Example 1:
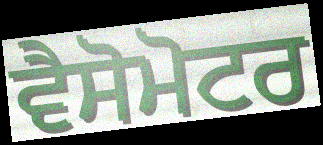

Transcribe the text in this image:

ਵੈਸੋਮੋਟਰ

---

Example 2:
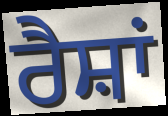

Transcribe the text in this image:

ਰੈਸ਼ਾਂ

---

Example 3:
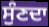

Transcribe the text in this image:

ਸੁੰਣਦਾ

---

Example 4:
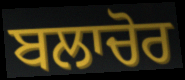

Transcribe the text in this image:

ਬਲਾਚੋਰ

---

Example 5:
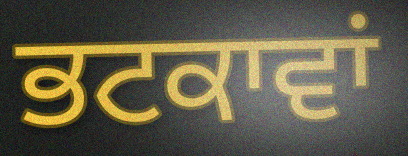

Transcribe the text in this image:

ਭਟਕਾਵਾਂ